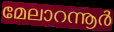
മേലാറന്നൂർ